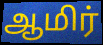
ஆமிர்